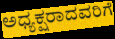
ಅಧ್ಯಕ್ಷರಾದವರಿಗೆ